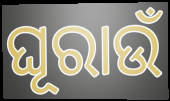
ଘୂରାଉଁ